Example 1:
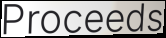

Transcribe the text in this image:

Proceeds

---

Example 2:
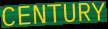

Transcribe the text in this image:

CENTURY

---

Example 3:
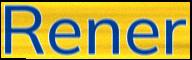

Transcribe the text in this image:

Rener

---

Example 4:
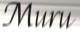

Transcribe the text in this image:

Muru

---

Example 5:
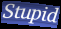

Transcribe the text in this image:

Stupid